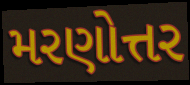
મરણોત્તર